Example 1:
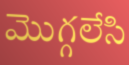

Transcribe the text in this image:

మొగ్గలేసి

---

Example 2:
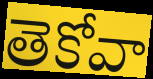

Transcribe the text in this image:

తెకోవా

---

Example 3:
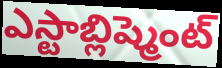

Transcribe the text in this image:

ఎస్టాబ్లిష్మెంట్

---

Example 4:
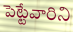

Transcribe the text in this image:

పెట్టేవారిని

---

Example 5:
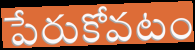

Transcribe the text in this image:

పేరుకోవటం